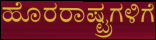
ಹೊರರಾಷ್ಟ್ರಗಳಿಗೆ